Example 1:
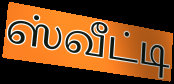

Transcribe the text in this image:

ஸ்வீட்டி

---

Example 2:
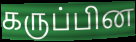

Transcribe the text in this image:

கருப்பின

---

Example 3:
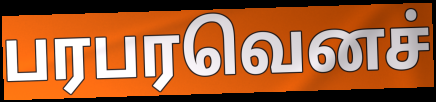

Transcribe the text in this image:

பரபரவெனச்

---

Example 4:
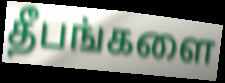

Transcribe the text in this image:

தீபங்களை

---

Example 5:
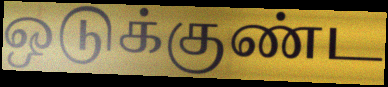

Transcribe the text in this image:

ஒடுக்குண்ட